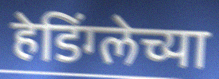
हेडिंग्लेच्या